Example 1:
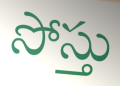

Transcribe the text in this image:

సోస్తు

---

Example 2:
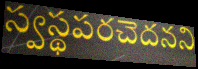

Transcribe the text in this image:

స్వస్థపరచెదనని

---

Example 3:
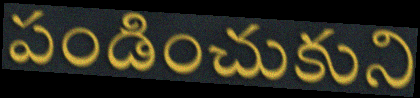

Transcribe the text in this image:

పండించుకుని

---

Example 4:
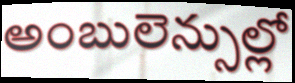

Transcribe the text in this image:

అంబులెన్సుల్లో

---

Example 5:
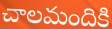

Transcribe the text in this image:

చాలమందికి